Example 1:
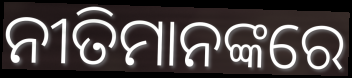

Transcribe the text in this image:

ନୀତିମାନଙ୍କରେ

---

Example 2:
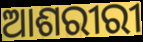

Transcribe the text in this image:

ଆଶରୀରୀ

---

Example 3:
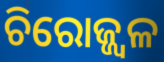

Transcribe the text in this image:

ଚିରୋଜ୍ଜ୍ଵଳ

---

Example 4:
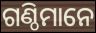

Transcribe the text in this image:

ଗଣ୍ଠିମାନେ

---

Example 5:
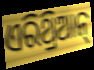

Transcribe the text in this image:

ଏରିଥ୍ରିଆନ୍